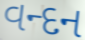
વન્દન